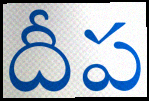
దీప